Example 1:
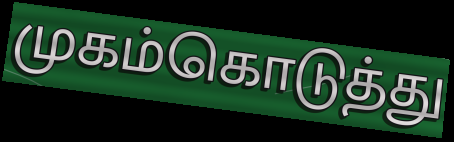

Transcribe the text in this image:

முகம்கொடுத்து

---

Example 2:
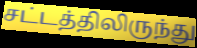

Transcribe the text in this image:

சட்டத்திலிருந்து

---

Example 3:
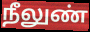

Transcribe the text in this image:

நீலுண்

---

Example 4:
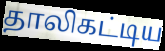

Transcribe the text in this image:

தாலிகட்டிய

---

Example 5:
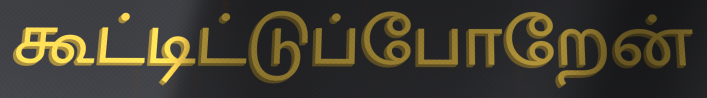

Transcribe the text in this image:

கூட்டிட்டுப்போறேன்